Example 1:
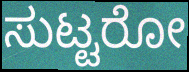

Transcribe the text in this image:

ಸುಟ್ಟರೋ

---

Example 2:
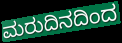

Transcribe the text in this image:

ಮರುದಿನದಿಂದ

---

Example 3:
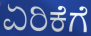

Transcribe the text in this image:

ಏರಿಕೆಗೆ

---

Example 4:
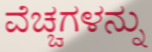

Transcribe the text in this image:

ವೆಚ್ಚಗಳನ್ನು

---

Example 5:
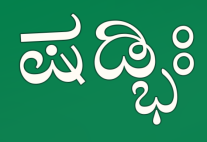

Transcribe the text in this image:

ಷಡ್ಭಿಃ